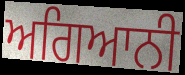
ਅਗਿਆਨੀ